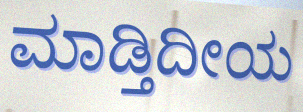
ಮಾಡ್ತಿದೀಯ